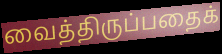
வைத்திருப்பதைக்